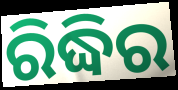
ରିଦ୍ଧିର